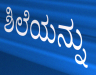
ಶಿಲೆಯನ್ನು